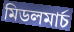
মিডলমাৰ্চ